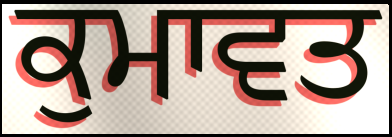
ਕੁਮਾਵਤ